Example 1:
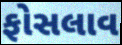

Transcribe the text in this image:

ફોસલાવ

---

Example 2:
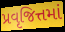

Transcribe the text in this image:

પ્રવૃજિત્તમાં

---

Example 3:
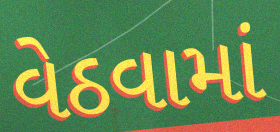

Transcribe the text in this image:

વેઠવામાં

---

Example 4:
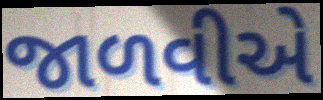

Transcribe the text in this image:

જાળવીએ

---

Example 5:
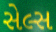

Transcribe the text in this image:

સેલ્સ